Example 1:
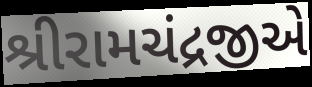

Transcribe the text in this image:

શ્રીરામચંદ્રજીએ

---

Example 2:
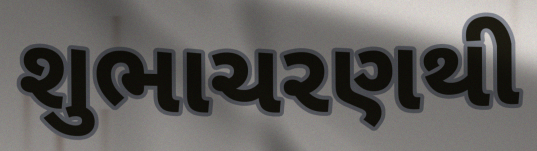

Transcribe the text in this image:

શુભાચરણથી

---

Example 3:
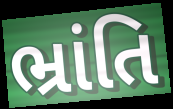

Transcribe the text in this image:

ભ્રાંતિ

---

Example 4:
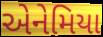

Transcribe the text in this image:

એનેમિયા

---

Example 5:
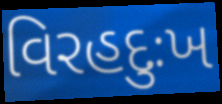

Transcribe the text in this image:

વિરહદુઃખ